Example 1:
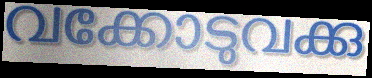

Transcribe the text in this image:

വക്കോടുവക്കു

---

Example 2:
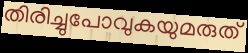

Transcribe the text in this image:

തിരിച്ചുപോവുകയുമരുത്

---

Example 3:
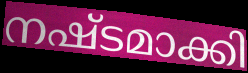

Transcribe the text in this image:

നഷ്ടമാക്കി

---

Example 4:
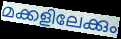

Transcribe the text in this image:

മക്കളിലേക്കും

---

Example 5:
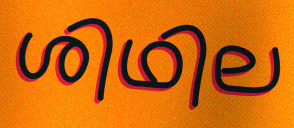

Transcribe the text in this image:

ശിഥില